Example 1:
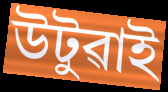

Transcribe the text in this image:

উটুৱাই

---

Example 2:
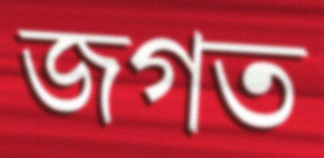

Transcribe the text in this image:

জগত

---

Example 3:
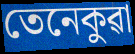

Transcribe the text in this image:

তেনেকুৱা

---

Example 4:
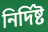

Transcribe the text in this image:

নিৰ্দিষ্ট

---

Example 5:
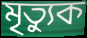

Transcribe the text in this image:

মৃত্যুক